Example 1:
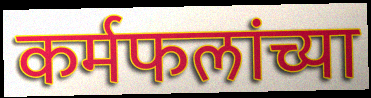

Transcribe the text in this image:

कर्मफलांच्या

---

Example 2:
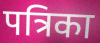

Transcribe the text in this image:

पत्रिका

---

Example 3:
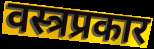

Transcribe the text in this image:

वस्त्रप्रकार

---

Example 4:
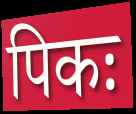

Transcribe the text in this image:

पिकः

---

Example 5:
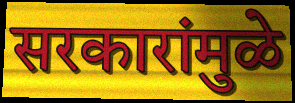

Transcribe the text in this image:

सरकारांमुळे